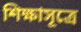
শিক্ষাসূত্রে